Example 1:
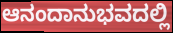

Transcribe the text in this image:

ಆನಂದಾನುಭವದಲ್ಲಿ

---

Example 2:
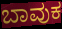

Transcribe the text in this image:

ಬಾವುಕ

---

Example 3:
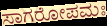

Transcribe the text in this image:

ಸಾಗರೋಪಮಃ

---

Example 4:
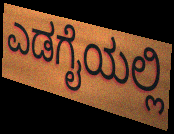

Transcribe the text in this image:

ಎಡಗೈಯಲ್ಲಿ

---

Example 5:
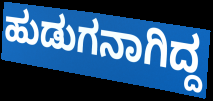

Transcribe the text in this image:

ಹುಡುಗನಾಗಿದ್ದ